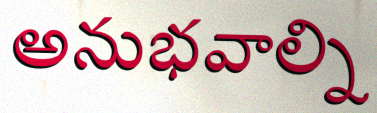
అనుభవాల్ని